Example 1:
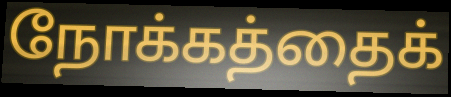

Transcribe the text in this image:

நோக்கத்தைக்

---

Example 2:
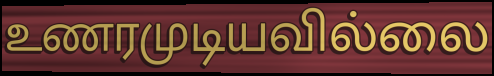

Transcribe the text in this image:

உணரமுடியவில்லை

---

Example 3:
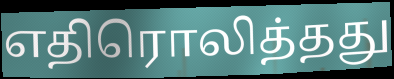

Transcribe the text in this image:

எதிரொலித்தது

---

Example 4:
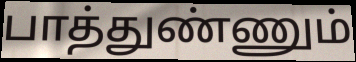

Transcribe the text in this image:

பாத்துண்ணும்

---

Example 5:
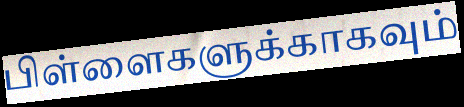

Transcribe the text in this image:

பிள்ளைகளுக்காகவும்